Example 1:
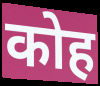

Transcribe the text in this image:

कोह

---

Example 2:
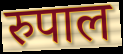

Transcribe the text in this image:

रुपाल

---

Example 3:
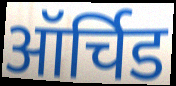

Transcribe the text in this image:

ऑर्चिड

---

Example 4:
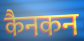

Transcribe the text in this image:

कैनकन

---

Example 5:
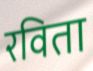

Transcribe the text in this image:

रविता